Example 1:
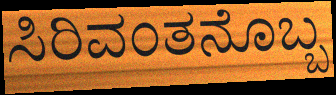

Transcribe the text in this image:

ಸಿರಿವಂತನೊಬ್ಬ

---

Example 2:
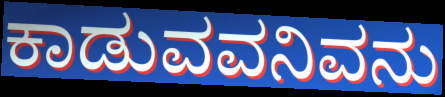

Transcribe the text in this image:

ಕಾಡುವವನಿವನು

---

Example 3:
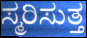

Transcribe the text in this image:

ಸ್ಮರಿಸುತ್ತ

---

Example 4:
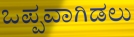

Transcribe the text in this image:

ಒಪ್ಪವಾಗಿಡಲು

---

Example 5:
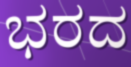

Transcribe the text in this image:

ಭರದ